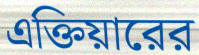
এক্তিয়ারের